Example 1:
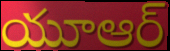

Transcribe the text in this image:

యూఆర్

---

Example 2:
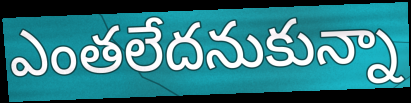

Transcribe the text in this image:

ఎంతలేదనుకున్నా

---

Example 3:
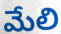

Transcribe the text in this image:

మేలి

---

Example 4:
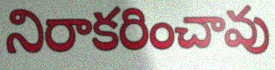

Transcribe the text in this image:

నిరాకరించావు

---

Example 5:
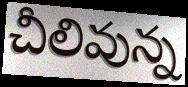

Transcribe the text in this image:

చీలివున్న